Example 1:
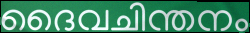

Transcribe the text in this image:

ദൈവചിന്തനം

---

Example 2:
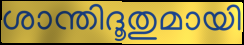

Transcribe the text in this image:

ശാന്തിദൂതുമായി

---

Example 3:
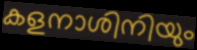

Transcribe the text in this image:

കളനാശിനിയും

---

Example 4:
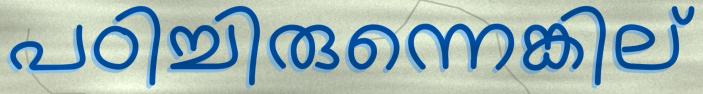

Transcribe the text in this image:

പഠിച്ചിരുന്നെങ്കില്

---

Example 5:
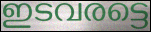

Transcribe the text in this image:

ഇടവരട്ടെ